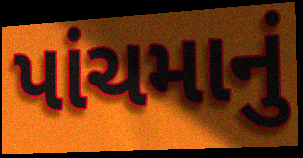
પાંચમાનું